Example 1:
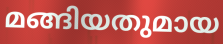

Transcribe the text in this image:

മങ്ങിയതുമായ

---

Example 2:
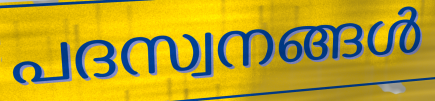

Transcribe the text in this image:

പദസ്വനങ്ങൾ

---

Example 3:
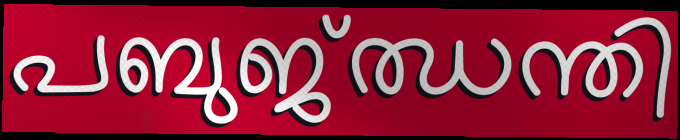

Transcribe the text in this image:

പബുജ്ഝന്തി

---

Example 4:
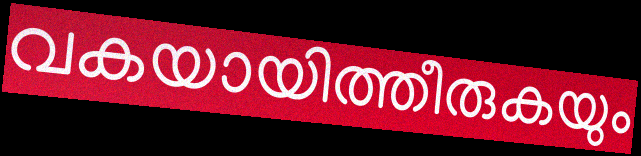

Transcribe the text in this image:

വകയായിത്തീരുകയും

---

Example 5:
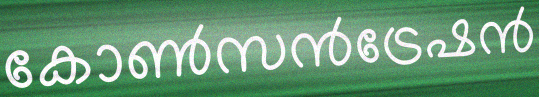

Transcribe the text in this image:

കോൺസൻട്രേഷൻ